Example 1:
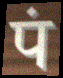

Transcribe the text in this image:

पं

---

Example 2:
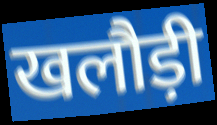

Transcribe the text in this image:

खलौड़ी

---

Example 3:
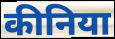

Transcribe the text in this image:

कीनिया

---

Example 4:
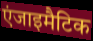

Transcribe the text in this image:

एंजाइमैटिक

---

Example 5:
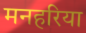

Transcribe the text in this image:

मनहरिया